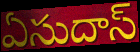
ఏసుదాస్